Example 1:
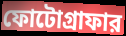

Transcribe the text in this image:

ফোটোগ্রাফার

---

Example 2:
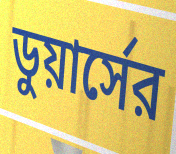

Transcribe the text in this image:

ডুয়ার্সের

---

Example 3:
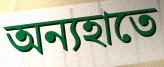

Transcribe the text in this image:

অন্যহাতে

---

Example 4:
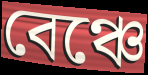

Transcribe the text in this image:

বেঞ্চে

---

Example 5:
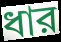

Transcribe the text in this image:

ধার